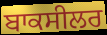
ਬਾਕਸੀਲਰ